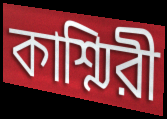
কাশ্মিরী